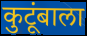
कुटूंबाला